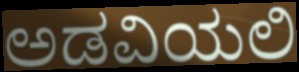
ಅಡವಿಯಲಿ